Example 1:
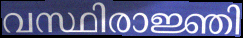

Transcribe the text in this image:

വസ്ഥിരാജ്ഞി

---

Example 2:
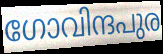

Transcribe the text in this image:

ഗോവിന്ദപുര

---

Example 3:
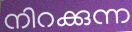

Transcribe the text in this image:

നിറക്കുന്ന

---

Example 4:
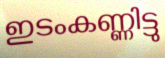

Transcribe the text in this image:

ഇടംകണ്ണിട്ടു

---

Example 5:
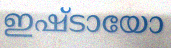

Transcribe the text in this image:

ഇഷ്ടായോ